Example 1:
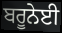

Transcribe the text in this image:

ਬਰੂਨੇਈ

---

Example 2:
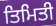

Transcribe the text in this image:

ਤਿਮਿਤੀ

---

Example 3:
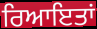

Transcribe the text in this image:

ਰਿਆਇਤਾਂ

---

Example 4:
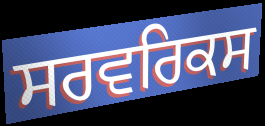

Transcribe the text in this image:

ਸਰਵਰਿਕਸ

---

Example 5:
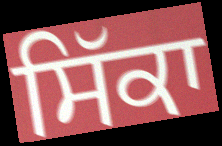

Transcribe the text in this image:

ਸਿੱਕਾ